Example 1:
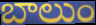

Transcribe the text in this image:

బాలుం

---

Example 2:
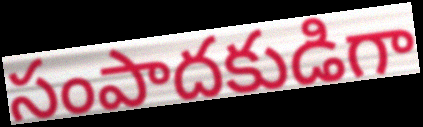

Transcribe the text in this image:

సంపాదకుడిగా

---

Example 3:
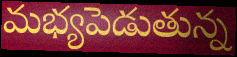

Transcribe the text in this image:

మభ్యపెడుతున్న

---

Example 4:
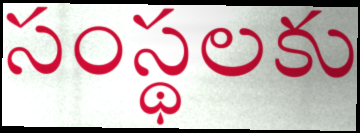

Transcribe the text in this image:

సంస్థలకు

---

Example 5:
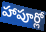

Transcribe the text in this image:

హాపూర్లో